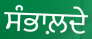
ਸੰਭਾਲ਼ਦੇ